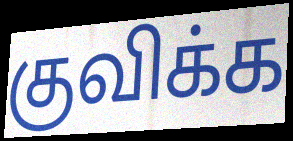
குவிக்க